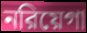
নরিয়েগা